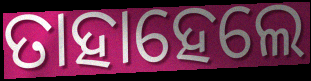
ତାହାହେଲେ